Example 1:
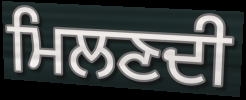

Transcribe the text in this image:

ਮਿਲਣਦੀ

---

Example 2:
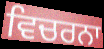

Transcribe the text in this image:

ਵਿਚਰਨਾ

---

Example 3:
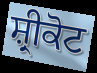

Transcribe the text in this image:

ਸ਼੍ਰੀਕੋਟ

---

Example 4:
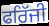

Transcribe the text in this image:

ਫਰਿੱਜੀ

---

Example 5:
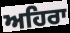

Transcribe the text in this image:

ਅਹਿਰਾ